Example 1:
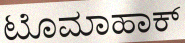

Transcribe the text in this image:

ಟೊಮಾಹಾಕ್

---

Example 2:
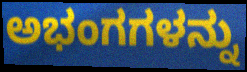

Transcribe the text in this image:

ಅಭಂಗಗಳನ್ನು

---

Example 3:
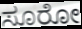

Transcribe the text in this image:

ಸೂರೋ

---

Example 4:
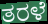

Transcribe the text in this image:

ತರಳೆ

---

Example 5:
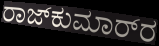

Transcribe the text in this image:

ರಾಜ್‌ಕುಮಾರ್‌ರ